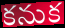
కనుక